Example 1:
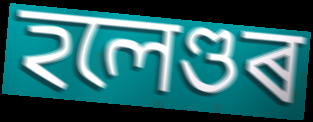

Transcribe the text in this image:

হলেণ্ডৰ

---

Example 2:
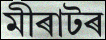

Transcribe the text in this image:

মীৰাটৰ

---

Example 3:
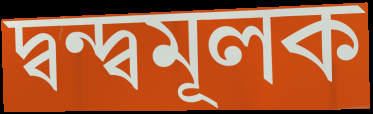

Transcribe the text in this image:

দ্বন্দ্বমূলক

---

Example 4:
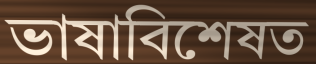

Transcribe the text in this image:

ভাষাবিশেষত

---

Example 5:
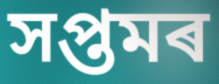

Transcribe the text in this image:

সপ্তমৰ